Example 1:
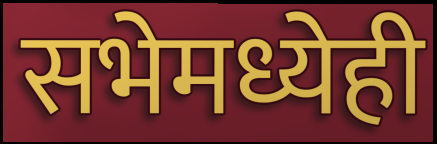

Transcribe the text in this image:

सभेमध्येही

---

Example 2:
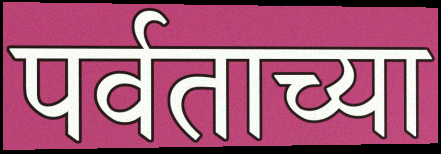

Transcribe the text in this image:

पर्वताच्या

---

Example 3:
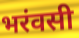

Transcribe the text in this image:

भरंवसी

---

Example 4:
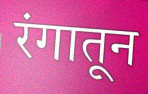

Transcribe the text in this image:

रंगातून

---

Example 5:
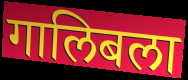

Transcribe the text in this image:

गालिबला